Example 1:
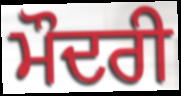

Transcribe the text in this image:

ਮੌਦਰੀ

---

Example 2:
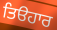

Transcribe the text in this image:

ਤਿੳਹਾਰ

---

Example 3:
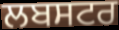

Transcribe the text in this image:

ਲਬਸਟਰ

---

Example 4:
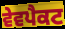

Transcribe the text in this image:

ਵੇਵਪੈਕਟ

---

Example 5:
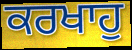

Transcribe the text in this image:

ਕਰਖਾਹੁ